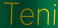
Teni